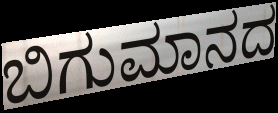
ಬಿಗುಮಾನದ